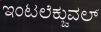
ಇಂಟಲೆಕ್ಚುವಲ್